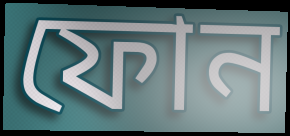
ফোন